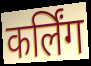
कर्लिंग